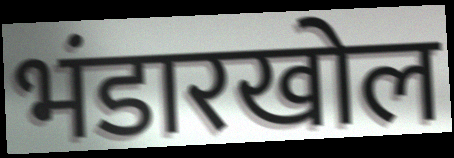
भंडारखोल